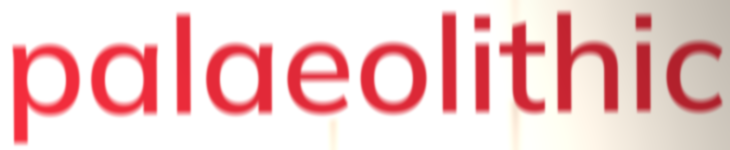
palaeolithic